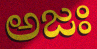
అజః